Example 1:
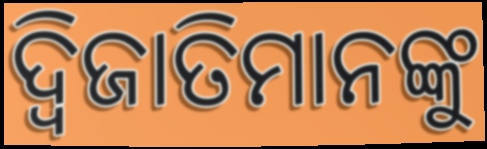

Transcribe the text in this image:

ଦ୍ୱିଜାତିମାନଙ୍କୁ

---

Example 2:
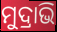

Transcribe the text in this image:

ମୁଦ୍ରାଭି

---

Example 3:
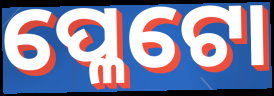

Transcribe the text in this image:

ପ୍ଳେଟୋ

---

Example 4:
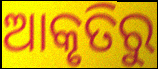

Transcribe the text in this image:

ଆକୃତିରୁ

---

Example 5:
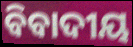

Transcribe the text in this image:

ବିବାଦୀୟ